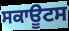
ਸਕਾਊਟਸ